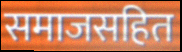
समाजसहित